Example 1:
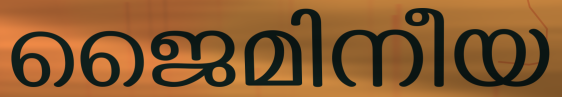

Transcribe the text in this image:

ജൈമിനീയ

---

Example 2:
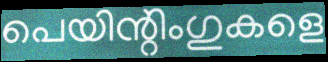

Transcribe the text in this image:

പെയിന്റിംഗുകളെ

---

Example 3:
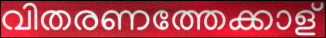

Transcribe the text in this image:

വിതരണത്തേക്കാള്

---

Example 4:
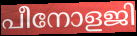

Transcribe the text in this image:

പീനോളജി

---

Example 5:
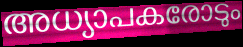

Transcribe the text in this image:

അധ്യാപകരോടും